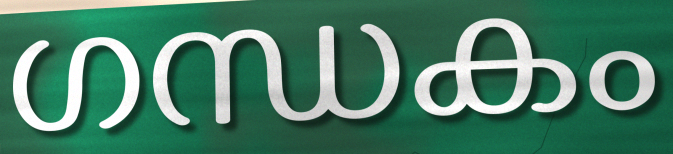
ഗന്ധകം